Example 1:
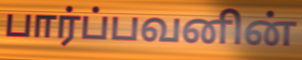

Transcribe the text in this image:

பார்ப்பவனின்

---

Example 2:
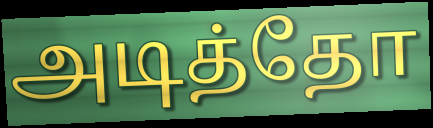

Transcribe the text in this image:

அடித்தோ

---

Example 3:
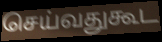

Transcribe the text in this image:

செய்வதுகூட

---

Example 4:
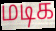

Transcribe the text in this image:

மடிக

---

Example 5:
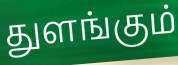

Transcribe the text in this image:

துளங்கும்